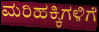
ಮರಿಹಕ್ಕಿಗಳಿಗೆ